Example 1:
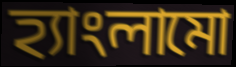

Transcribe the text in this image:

হ্যাংলামো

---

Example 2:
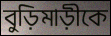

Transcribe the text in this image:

বুড়িমাড়ীকে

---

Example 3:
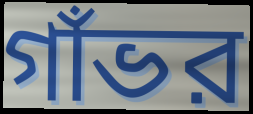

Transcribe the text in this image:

গাঁভর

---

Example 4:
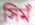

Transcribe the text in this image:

সিমঁ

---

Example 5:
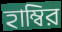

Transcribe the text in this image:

হাম্বির